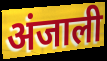
अंजाली